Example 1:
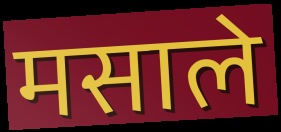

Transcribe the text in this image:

मसाले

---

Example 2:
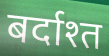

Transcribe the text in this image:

बर्दाश्त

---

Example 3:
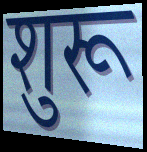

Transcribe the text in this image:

शुरू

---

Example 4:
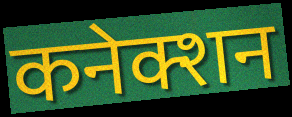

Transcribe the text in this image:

कनेक्शन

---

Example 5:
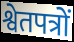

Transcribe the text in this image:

श्वेतपत्रों